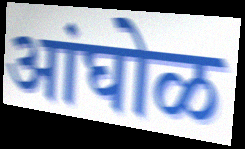
आंघोळ